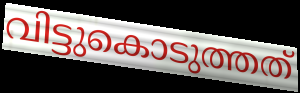
വിട്ടുകൊടുത്തത്